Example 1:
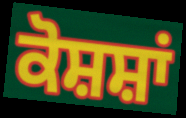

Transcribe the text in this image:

ਕੋਸ਼ਸ਼ਾਂ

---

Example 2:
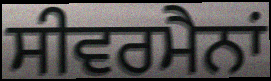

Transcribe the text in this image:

ਸੀਵਰਮੈਨਾਂ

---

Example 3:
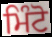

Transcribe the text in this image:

ਮਿੰਟੋ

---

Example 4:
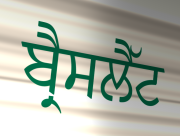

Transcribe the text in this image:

ਬ੍ਰੈਸਲੈੱਟ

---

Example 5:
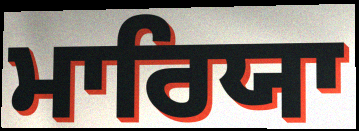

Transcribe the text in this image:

ਮਾਰਿਯਾ